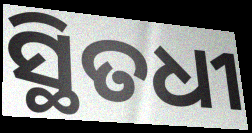
ସ୍ଥିତଧୀ